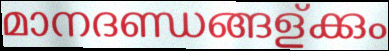
മാനദണ്ഡങ്ങള്ക്കും